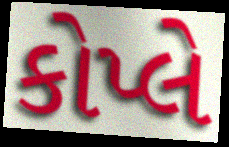
કોપ્લે